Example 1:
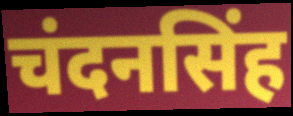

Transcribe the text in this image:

चंदनसिंह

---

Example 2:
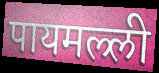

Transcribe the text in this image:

पायमल्ली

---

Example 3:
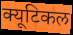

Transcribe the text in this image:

क्यूटिकल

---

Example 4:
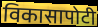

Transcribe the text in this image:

विकासापोटी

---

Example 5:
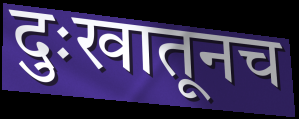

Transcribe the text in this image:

दुःखातूनच